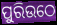
ପୁରିଉଠେ